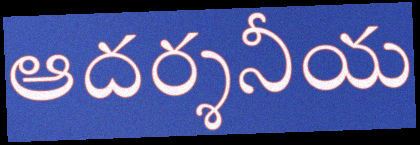
ఆదర్శనీయ